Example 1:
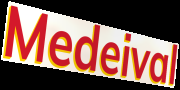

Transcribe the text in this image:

Medeival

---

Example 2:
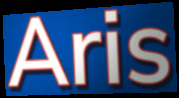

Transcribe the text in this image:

Aris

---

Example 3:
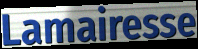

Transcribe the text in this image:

Lamairesse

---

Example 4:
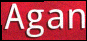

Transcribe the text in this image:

Agan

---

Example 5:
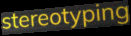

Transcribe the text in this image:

stereotyping